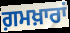
ਗ਼ਮਖ਼ਾਰਾਂ